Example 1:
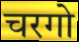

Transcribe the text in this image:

चरगो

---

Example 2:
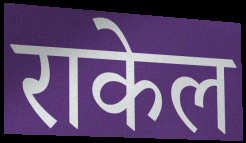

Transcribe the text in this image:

राकेल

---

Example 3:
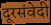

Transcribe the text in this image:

दूरसंवेदी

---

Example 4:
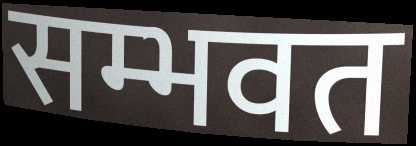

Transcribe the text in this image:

सम्भवत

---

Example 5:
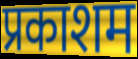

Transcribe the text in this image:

प्रकाशम